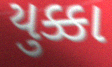
યુક્કા